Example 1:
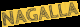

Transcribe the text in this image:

NAGALLA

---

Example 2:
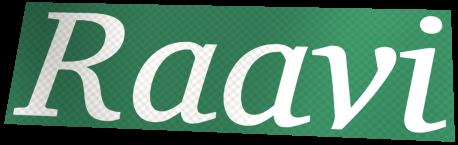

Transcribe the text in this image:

Raavi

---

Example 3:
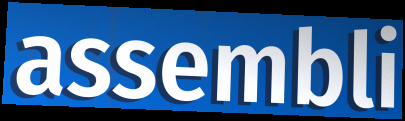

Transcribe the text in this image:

assembli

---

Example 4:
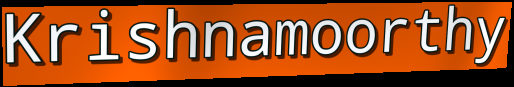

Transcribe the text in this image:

Krishnamoorthy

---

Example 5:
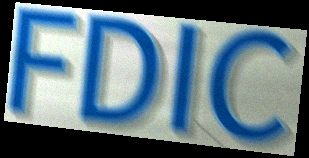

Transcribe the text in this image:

FDIC